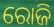
ରୋଜି